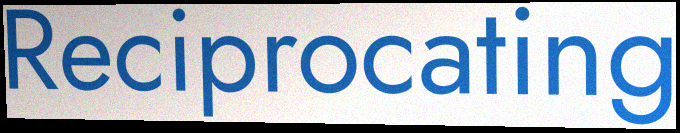
Reciprocating